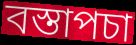
বস্তাপচা